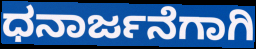
ಧನಾರ್ಜನೆಗಾಗಿ